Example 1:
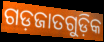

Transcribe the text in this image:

ଗଡ଼ଜାତଗୁଡ଼ିକ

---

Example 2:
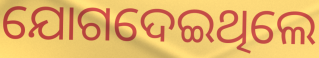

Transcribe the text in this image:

ଯୋଗଦେଇଥିଲେ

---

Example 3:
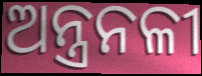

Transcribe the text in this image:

ଅନ୍ତ୍ରନଳୀ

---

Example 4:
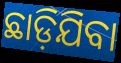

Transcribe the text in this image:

ଛାଡ଼ିଯିବା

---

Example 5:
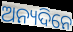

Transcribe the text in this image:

ଅନ୍ୟଦିନେ